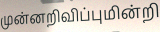
முன்னறிவிப்புமின்றி